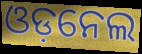
ଓଡ଼ନେଲ